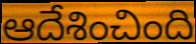
ఆదేశించింది